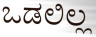
ಒಡಲಿಲ್ಲ